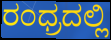
ರಂಧ್ರದಲ್ಲಿ